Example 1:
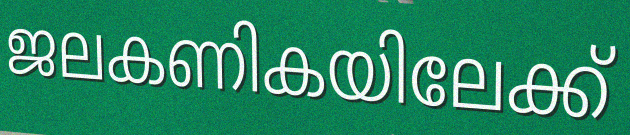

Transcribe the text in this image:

ജലകണികയിലേക്ക്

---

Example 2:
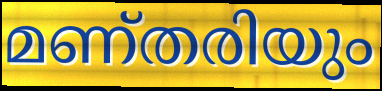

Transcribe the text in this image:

മണ്തരിയും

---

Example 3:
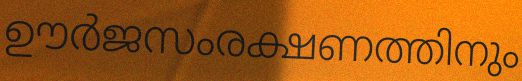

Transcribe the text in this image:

ഊർജസംരക്ഷണത്തിനും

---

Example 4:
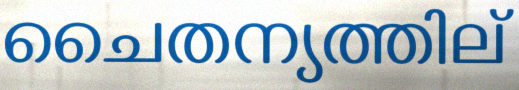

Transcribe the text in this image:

ചൈതന്യത്തില്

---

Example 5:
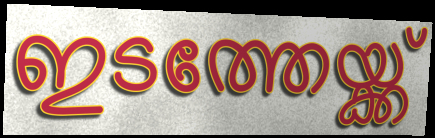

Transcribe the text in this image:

ഇടത്തേയ്ക്ക്